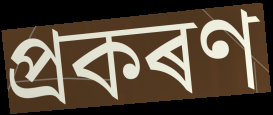
প্ৰকৰণ